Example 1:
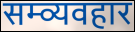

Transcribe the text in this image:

सम्व्यवहार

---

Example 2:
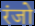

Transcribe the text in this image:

रंजो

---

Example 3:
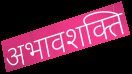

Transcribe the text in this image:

अभावशक्ति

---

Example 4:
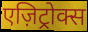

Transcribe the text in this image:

एज़िट्रोक्स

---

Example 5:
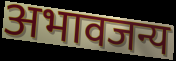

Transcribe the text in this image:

अभावजन्य